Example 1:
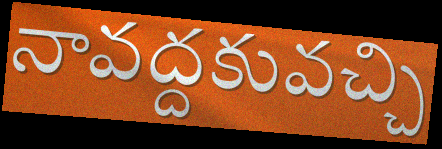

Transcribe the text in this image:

నావద్దకువచ్చి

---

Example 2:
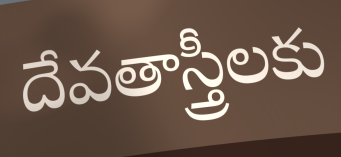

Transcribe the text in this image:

దేవతాస్త్రీలకు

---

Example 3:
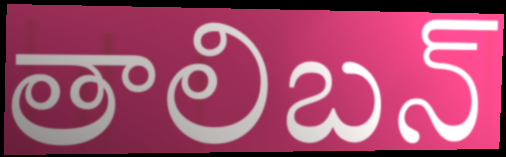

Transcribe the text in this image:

తాలిబన్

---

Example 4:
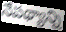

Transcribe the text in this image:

నేపథ్యాన్ని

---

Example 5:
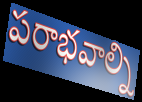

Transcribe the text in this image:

పరాభవాల్ని